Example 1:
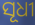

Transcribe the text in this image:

ସୂଧୀ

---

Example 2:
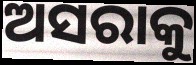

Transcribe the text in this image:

ଅସରାକୁ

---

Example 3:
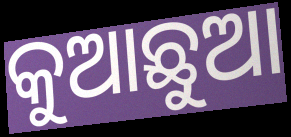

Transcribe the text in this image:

କୁଆଛୁଆ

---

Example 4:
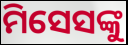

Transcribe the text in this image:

ମିସେସଙ୍କୁ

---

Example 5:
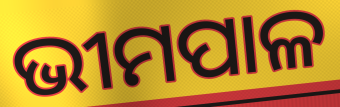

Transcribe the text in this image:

ଭୀମପାଳ